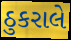
ઠુકરાલે